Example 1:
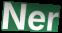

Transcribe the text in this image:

Ner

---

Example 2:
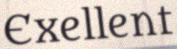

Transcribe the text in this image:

Exellent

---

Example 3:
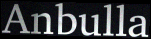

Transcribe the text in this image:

Anbulla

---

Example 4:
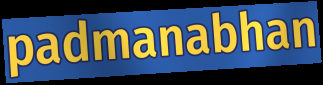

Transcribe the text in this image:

padmanabhan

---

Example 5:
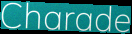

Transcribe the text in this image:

Charade